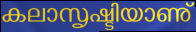
കലാസൃഷ്ടിയാണു്